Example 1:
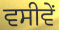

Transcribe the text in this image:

ਵਸੀਵੇਂ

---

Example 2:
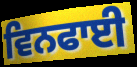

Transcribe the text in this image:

ਵਿਨਫਾਈ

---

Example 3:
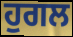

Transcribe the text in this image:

ਹੁਗਲ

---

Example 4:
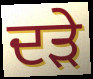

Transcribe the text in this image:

ਦੜੇ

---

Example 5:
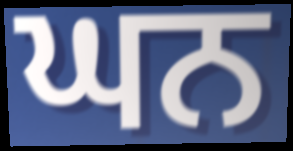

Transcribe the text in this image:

ਘਨ